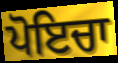
ਪੋਇਚਾ